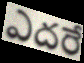
ఎదరే